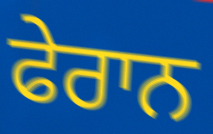
ਫੇਰਾਨ